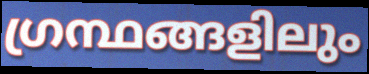
ഗ്രന്ഥങ്ങളിലും